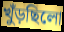
খুঁড়ছিলো